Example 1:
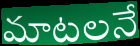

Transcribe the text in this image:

మాటలనే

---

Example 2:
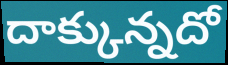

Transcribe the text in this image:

దాక్కున్నదో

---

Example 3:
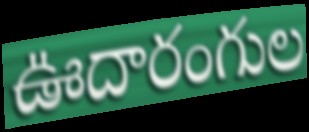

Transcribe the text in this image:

ఊదారంగుల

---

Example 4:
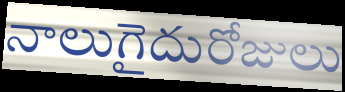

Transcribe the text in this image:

నాలుగైదురోజులు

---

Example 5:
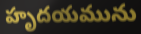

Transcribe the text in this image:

హృదయమును